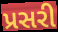
પ્રસરી